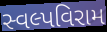
સ્વલ્પવિરામ